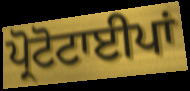
ਪ੍ਰੋਟੋਟਾਈਪਾਂ